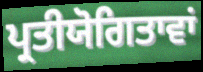
ਪ੍ਰਤੀਯੋਗਿਤਾਵਾਂ